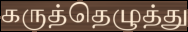
கருத்தெழுத்து